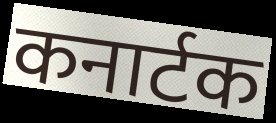
कनार्टक